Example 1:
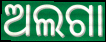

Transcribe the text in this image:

ଅଲଗା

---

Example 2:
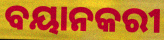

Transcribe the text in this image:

ବୟାନକରୀ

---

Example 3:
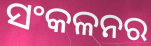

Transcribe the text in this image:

ସଂକଳନର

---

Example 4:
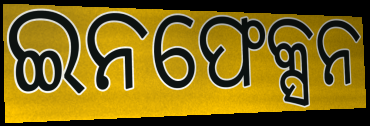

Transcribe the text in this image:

ଇନଫେକ୍ସନ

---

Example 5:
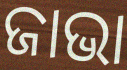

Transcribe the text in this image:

ଜାଭା